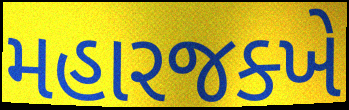
મહારજક્ખે